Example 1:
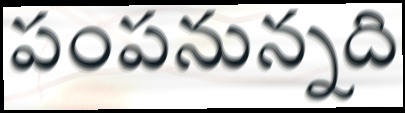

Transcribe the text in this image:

పంపనున్నది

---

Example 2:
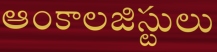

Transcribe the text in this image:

ఆంకాలజిస్టులు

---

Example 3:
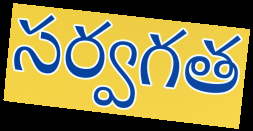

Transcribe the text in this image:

సర్వగత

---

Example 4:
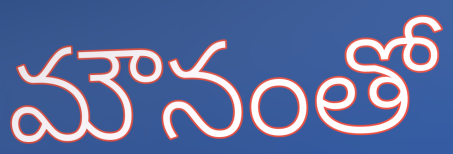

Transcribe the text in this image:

మౌనంతో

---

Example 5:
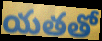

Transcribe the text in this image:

యతతో